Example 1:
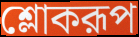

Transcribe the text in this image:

শ্লোকরূপ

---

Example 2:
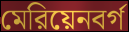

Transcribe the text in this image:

মেরিয়েনবর্গ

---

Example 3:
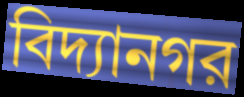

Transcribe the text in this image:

বিদ্যানগর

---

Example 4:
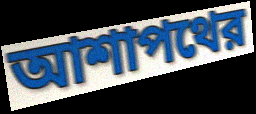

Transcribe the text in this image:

আশাপথের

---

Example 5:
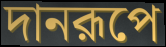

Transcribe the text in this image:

দানরূপে